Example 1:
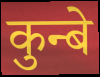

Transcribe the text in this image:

कुन्बे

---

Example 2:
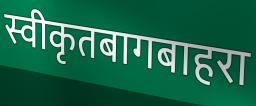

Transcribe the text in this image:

स्वीकृतबागबाहरा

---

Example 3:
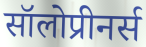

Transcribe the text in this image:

सॉलोप्रीनर्स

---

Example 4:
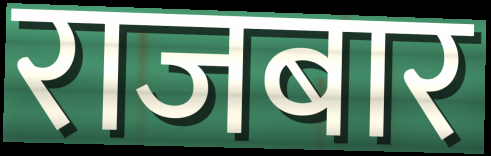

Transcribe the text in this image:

राजबार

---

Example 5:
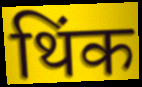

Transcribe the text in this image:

थिंक